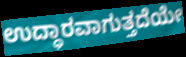
ಉದ್ಧಾರವಾಗುತ್ತದೆಯೇ